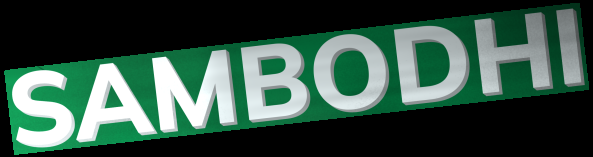
SAMBODHI